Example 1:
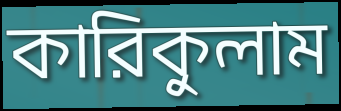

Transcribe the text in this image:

কারিকুলাম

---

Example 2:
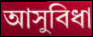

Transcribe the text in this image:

আসুবিধা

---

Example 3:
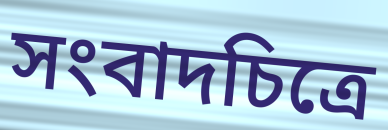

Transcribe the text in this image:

সংবাদচিত্রে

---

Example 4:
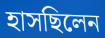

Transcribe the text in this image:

হাসছিলেন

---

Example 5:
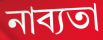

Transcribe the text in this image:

নাব্যতা